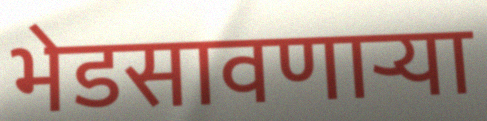
भेडसावणार्‍या